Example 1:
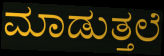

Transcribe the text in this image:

ಮಾಡುತ್ತಲೆ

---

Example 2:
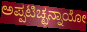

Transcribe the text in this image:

ಅಪ್ಪಟಿಚ್ಛನ್ನಾಯೋ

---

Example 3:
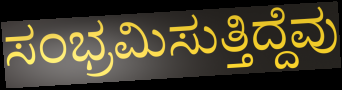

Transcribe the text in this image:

ಸಂಭ್ರಮಿಸುತ್ತಿದ್ದೆವು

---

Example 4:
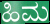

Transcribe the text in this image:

ಹಿಮ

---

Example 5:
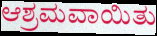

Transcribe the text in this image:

ಆಶ್ರಮವಾಯಿತು